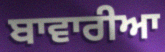
ਬਾਵਾਰੀਆ